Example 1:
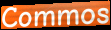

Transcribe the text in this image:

Commos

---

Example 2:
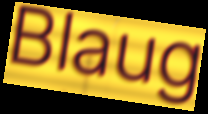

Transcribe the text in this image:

Blaug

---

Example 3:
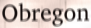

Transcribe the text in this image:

Obregon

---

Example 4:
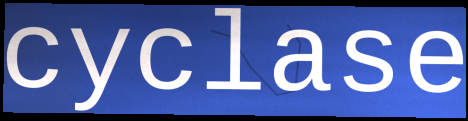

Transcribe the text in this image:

cyclase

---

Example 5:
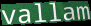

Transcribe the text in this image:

vallam